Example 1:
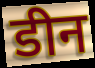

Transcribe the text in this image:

डीन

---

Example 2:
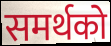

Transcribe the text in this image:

समर्थको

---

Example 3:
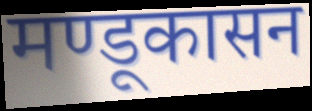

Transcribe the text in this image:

मण्डूकासन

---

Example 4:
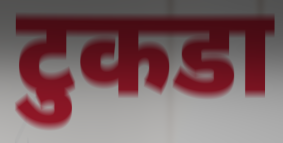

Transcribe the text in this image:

टुकडा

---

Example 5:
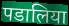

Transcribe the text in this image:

पडालिया